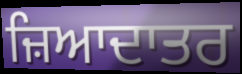
ਜ਼ਿਆਦਾਤਰ